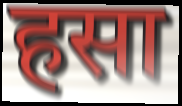
हसा